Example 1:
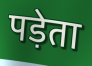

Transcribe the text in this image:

पड़ेता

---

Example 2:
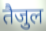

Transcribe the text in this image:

तैजुल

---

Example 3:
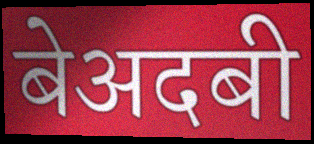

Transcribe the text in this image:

बेअदबी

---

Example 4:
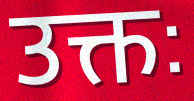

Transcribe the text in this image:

उक्तः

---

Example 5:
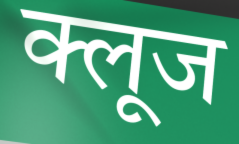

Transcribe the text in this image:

क्लूज